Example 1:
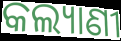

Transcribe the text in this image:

କଲ୍ୟାଣୀ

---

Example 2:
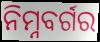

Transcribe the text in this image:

ନିମ୍ନବର୍ଗର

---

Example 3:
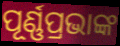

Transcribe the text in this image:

ପୂର୍ଣ୍ଣପ୍ରଭାଙ୍କ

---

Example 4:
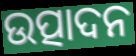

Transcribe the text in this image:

ଉତ୍ପାଦନ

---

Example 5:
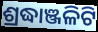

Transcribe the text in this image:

ଶ୍ରଦ୍ଧାଞ୍ଜଳିଟି